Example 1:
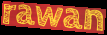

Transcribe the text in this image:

rawan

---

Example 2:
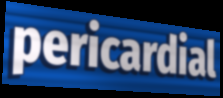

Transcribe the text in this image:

pericardial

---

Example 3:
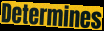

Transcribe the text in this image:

Determines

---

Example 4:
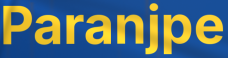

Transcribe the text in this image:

Paranjpe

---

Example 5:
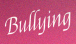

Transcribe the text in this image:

Bullying